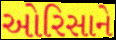
ઓરિસાને